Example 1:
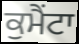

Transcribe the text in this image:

ਕੁਮੈਂਟਾ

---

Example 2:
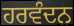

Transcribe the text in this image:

ਹਰਵੰਦਨ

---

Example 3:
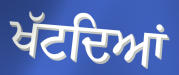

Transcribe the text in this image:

ਖੱਟਦਿਆਂ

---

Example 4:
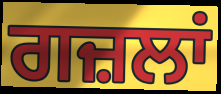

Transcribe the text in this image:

ਗਜ਼ਲਾਂ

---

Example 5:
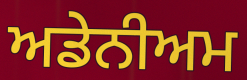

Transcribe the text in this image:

ਅਡੇਨੀਅਮ